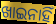
ଖାଇନାହିଁ